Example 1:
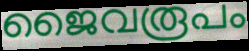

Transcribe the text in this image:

ജൈവരൂപം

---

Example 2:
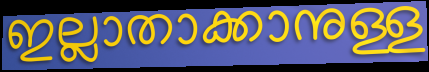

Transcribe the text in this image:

ഇല്ലാതാക്കാനുള്ള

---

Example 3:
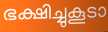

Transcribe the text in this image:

ഭക്ഷിച്ചുകൂടാ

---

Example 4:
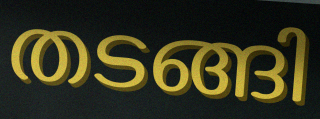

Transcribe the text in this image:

തടങ്ങി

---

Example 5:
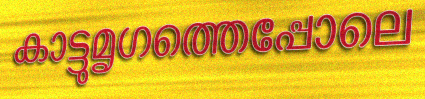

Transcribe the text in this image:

കാട്ടുമൃഗത്തെപ്പോലെ